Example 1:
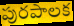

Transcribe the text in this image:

పురపాలక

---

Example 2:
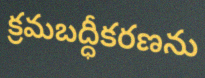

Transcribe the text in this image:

క్రమబద్ధీకరణను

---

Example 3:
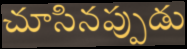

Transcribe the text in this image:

చూసినప్పుడు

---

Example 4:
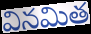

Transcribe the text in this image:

వినమిత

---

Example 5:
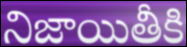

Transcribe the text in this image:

నిజాయితీకి